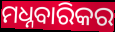
ମଧ୍ନବାରିକର